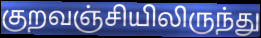
குறவஞ்சியிலிருந்து